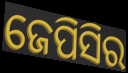
ଜେପିସିର